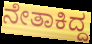
ನೇತಾಕಿದ್ದ